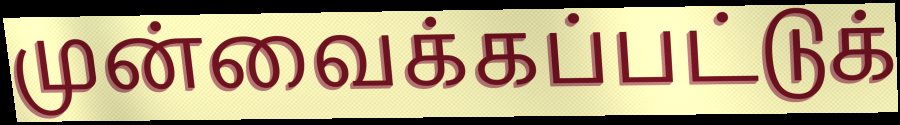
முன்வைக்கப்பட்டுக்